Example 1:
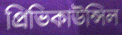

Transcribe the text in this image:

প্রিভিকাউন্সিল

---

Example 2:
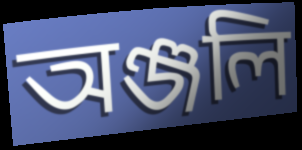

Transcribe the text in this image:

অঞ্জলি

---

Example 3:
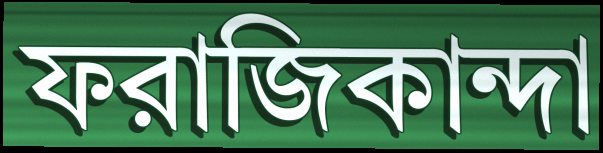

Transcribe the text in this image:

ফরাজিকান্দা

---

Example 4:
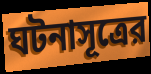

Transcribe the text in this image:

ঘটনাসূত্রের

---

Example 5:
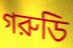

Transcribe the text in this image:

গরুডি